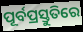
ପୂର୍ବପ୍ରସ୍ତୁତିରେ